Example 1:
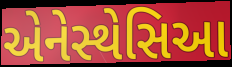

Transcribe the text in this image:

એનેસ્થેસિઆ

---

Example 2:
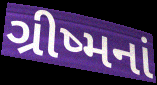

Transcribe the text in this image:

ગ્રીષ્મનાં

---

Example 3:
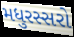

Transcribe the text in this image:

મધુરસ્સરો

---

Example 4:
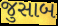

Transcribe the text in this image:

જુસાબ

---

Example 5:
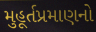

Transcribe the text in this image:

મુહૂર્તપ્રમાણનો